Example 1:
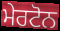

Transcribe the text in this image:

ਮੇਰਟੋਨ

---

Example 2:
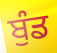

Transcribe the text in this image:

ਬੁੰਡ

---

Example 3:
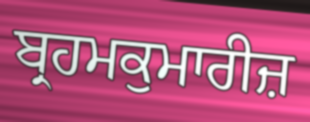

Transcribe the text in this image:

ਬ੍ਰਹਮਕੁਮਾਰੀਜ਼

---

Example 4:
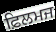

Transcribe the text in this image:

ਫ਼ਿਲਮਜ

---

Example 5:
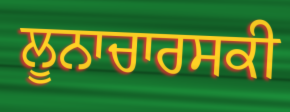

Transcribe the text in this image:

ਲੂਨਾਚਾਰਸਕੀ